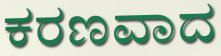
ಕರಣವಾದ